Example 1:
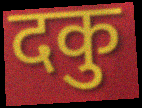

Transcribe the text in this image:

दकु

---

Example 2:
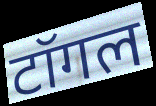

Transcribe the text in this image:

टॉगल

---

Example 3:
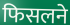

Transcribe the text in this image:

फिसलने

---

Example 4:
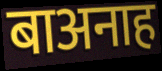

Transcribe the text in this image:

बाअनाह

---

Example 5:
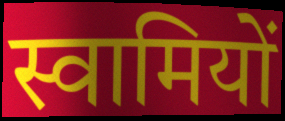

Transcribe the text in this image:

स्वामियों